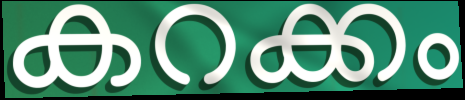
കറക്കം